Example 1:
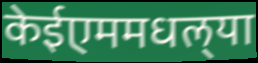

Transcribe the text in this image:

केईएममधल्या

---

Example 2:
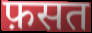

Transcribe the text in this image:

फ़सत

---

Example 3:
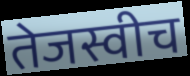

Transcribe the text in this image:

तेजस्वीच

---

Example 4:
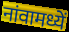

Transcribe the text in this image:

नांवामध्यें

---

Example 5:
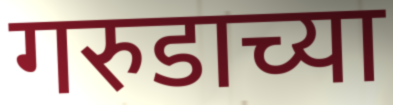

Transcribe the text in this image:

गरुडाच्या